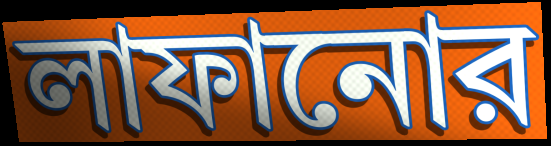
লাফানোর